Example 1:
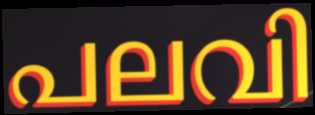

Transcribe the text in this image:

പലവി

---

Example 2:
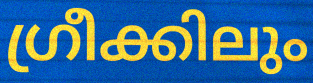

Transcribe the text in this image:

ഗ്രീക്കിലും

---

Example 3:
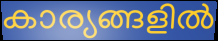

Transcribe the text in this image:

കാര്യങ്ങളിൽ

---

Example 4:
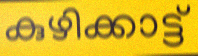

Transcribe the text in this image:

കുഴിക്കാട്ട്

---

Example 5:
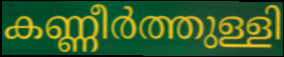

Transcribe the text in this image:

കണ്ണീർത്തുള്ളി